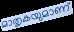
മാതൃകയുമാണ്